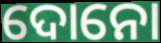
ଦୋନୋ